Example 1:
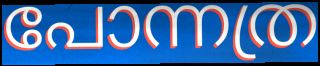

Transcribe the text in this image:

പോന്നത്ര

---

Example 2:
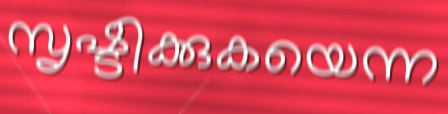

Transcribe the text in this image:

സൃഷ്ടിക്കുകയെന്ന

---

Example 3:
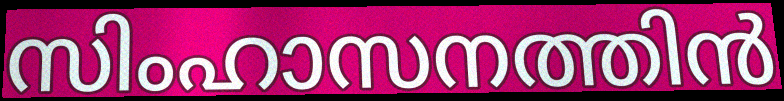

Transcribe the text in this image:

സിംഹാസനത്തിൻ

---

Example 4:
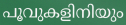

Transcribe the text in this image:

പൂവുകളിനിയും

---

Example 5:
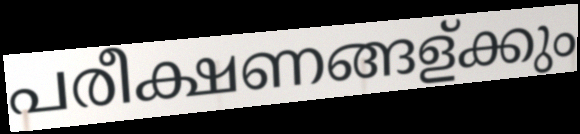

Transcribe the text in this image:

പരീക്ഷണങ്ങള്ക്കും